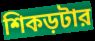
শিকড়টার